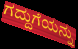
ಗದ್ದುಗೆಯನ್ನು